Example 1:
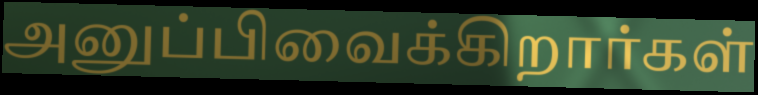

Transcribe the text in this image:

அனுப்பிவைக்கிறார்கள்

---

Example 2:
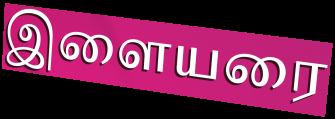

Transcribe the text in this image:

இளையரை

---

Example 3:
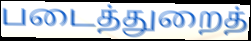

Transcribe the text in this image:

படைத்துறைத்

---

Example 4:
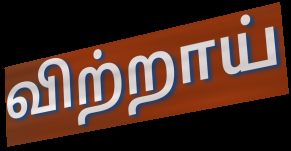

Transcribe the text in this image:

விற்றாய்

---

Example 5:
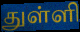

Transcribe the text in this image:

துள்ளி